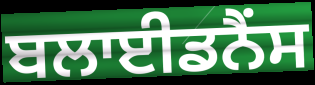
ਬਲਾਈਡਨੈਂਸ